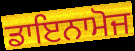
ਡਾਇਨਾਮੋਜ